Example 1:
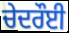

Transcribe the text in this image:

ਚੇਦਰੌਈ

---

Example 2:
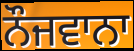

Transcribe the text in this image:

ਨੌਜਵਾਨਾ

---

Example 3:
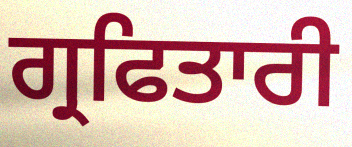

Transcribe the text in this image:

ਗ੍ਰਫਿਤਾਰੀ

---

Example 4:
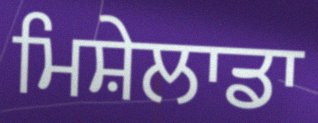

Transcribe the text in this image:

ਮਿਸ਼ੇਲਾਡਾ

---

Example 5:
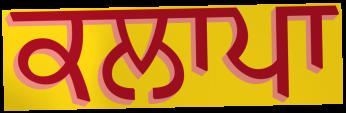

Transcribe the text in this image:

ਕਲਾਪਾ